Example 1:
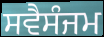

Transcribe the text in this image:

ਸਵੈਸੰਜਮ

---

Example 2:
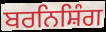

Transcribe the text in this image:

ਬਰਨਿਸ਼ਿੰਗ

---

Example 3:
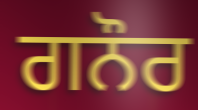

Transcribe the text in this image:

ਗਨੌਰ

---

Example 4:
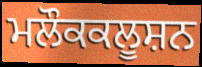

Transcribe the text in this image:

ਮਲੌਕਕਲੂਸ਼ਨ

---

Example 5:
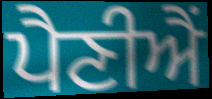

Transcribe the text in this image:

ਪੈਣੀਐਂ